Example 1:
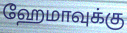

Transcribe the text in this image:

ஹேமாவுக்கு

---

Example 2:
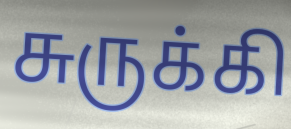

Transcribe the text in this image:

சுருக்கி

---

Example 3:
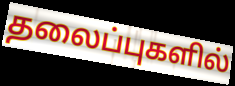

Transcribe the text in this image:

தலைப்புகளில்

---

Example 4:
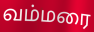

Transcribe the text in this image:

வம்மரை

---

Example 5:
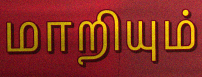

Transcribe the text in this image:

மாறியும்